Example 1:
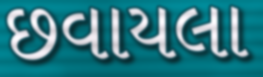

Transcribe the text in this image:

છવાયલા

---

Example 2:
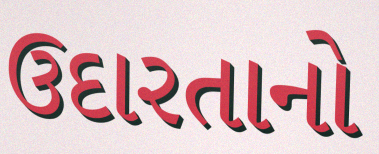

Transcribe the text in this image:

ઉદારતાનો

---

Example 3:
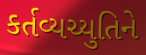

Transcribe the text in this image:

કર્તવ્યચ્યુતિને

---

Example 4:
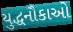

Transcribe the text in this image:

યુદ્ધનૌકાઓ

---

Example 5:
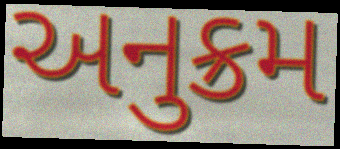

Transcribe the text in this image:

અનુક્રમ